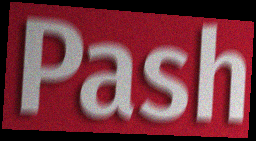
Pash